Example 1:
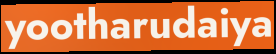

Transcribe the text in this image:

yootharudaiya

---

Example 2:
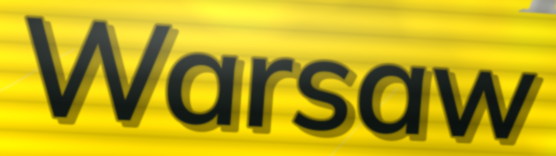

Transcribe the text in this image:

Warsaw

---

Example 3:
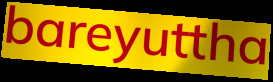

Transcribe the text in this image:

bareyuttha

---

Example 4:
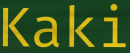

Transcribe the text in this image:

Kaki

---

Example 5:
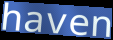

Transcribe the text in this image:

haven